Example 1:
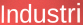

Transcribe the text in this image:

Industri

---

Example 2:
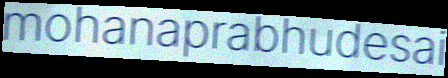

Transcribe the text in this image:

mohanaprabhudesai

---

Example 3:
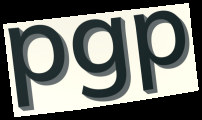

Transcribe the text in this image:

pgp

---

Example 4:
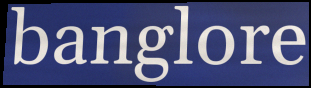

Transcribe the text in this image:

banglore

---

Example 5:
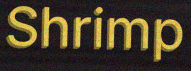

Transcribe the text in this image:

Shrimp